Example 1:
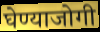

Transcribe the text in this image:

घेण्याजोगी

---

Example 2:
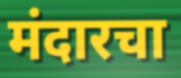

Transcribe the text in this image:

मंदारचा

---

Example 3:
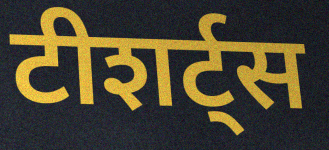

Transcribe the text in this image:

टीशर्ट्स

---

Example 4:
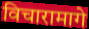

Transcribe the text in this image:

विचारामागे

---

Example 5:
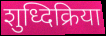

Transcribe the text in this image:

शुध्दिक्रिया